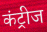
कंट्रीज